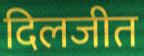
दिलजीत